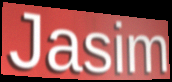
Jasim